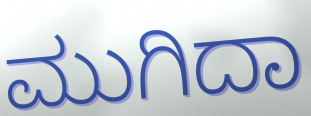
ಮುಗಿದಾ